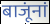
बाजूंनां